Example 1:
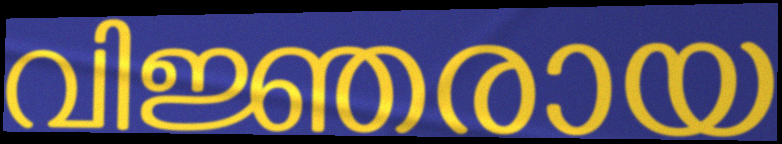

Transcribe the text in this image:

വിജ്ഞരായ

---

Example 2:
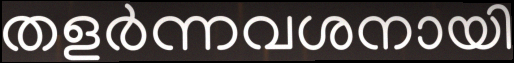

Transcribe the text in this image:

തളർന്നവശനായി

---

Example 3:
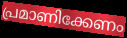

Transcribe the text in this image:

പ്രമാണിക്കേണം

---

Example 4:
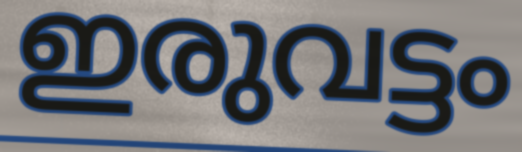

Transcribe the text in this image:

ഇരുവട്ടം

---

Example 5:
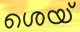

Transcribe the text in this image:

ശെയ്